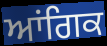
ਆਂਗਿਕ